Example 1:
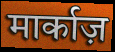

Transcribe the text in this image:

मार्काज़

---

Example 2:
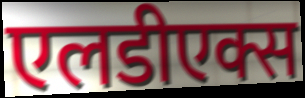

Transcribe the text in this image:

एलडीएक्स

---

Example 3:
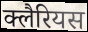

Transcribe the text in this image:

क्लैरियस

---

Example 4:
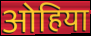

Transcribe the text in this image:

ओहिया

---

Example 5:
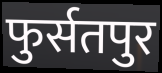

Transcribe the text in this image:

फुर्सतपुर